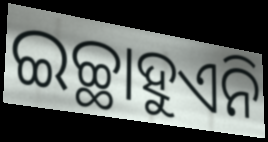
ଇଚ୍ଛାହୁଏନି